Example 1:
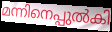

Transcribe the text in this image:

മന്നിനെപ്പുൽകി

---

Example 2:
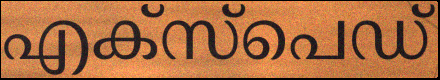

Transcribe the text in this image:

എക്സ്പെഡ്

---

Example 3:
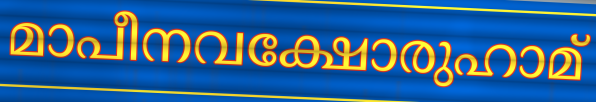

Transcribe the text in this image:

മാപീനവക്ഷോരുഹാമ്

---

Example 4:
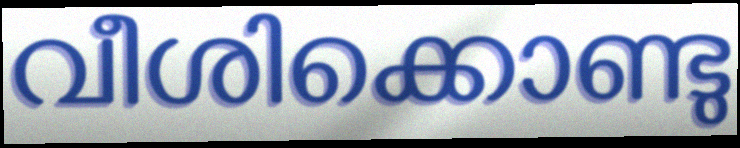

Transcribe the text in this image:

വീശിക്കൊണ്ടു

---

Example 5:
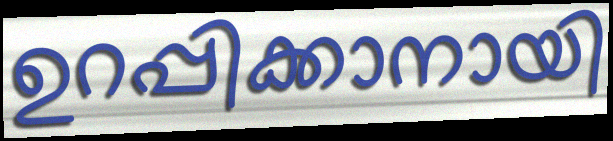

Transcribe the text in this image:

ഉറപ്പിക്കാനായി